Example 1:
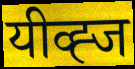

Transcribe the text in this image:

यीव्ह्ज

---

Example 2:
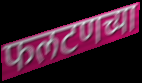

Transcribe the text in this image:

फलटणच्या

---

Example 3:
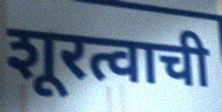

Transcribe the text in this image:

शूरत्वाची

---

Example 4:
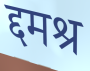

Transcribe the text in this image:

द्दमश्र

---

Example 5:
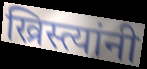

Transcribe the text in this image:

ख्रिस्त्यांनी